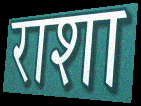
राशा